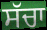
ਸੱਚਾ